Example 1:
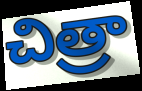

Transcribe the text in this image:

చిత్రా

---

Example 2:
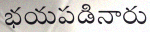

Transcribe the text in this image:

భయపడినారు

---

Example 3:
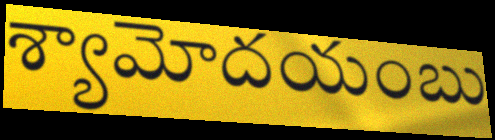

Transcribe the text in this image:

శ్యామోదయంబు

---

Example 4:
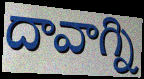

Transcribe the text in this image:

దావాగ్ని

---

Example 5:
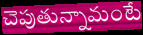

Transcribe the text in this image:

చెపుతున్నామంటే